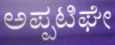
ಅಪ್ಪಟಿಘೇ